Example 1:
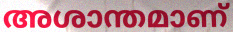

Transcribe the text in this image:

അശാന്തമാണ്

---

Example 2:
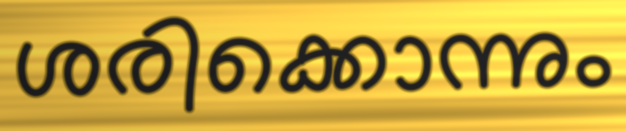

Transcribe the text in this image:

ശരിക്കൊന്നും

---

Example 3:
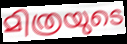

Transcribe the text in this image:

മിത്രയുടെ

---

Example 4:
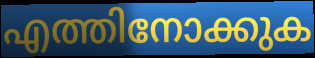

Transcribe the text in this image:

എത്തിനോക്കുക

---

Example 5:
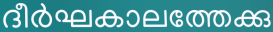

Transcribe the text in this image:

ദീർഘകാലത്തേക്കു